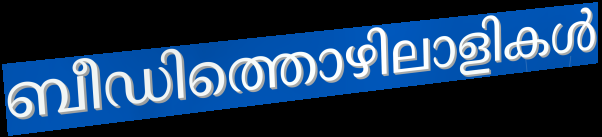
ബീഡിത്തൊഴിലാളികൾ